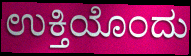
ಉಕ್ತಿಯೊಂದು